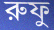
রুফু